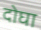
दोघा